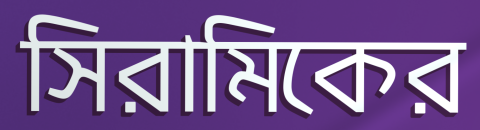
সিরামিকের